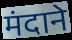
मंदाने